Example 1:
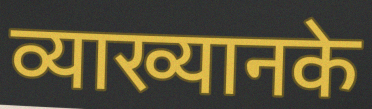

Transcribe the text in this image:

व्याख्यानके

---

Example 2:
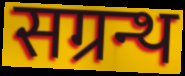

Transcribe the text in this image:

सग्रन्थ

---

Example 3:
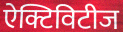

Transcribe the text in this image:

ऐक्टिविटीज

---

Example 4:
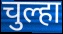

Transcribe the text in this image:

चुल्हा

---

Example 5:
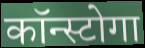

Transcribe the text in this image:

कॉन्स्टोगा